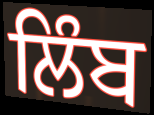
ਲਿੰਬ